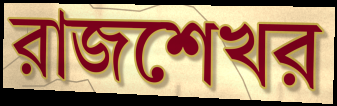
রাজশেখর